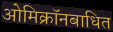
ओमिक्रॉनबाधित